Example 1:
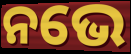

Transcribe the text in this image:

ନଭେ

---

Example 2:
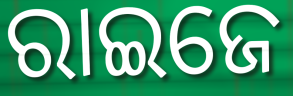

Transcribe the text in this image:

ରାଇଜେ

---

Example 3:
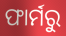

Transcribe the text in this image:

ଫାର୍ମରୁ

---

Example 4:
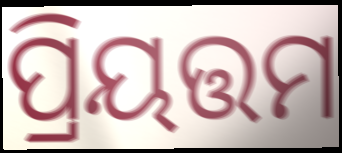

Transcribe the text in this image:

ପ୍ରିୟତ୍ତମ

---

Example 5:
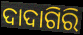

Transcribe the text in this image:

ଦାଦାଗିରି